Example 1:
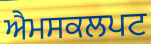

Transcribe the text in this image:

ਐਮਸਕਲਪਟ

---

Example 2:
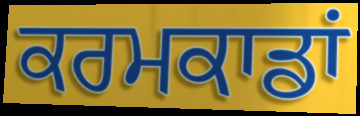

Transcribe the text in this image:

ਕਰਮਕਾਡਾਂ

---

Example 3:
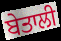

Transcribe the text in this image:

ਬੇਤਾਲੀ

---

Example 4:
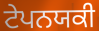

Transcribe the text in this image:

ਟੇਪਨਯਕੀ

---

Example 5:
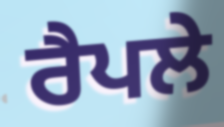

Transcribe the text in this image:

ਰੈਪਲੇ